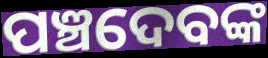
ପଞ୍ଚଦେବଙ୍କ